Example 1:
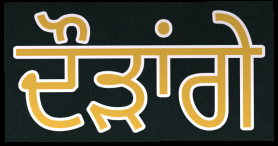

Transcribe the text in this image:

ਦੌੜਾਂਗੇ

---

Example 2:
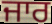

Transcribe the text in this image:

ਜਾਰ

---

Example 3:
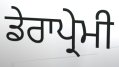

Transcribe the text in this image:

ਡੇਰਾਪ੍ਰੇਮੀ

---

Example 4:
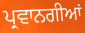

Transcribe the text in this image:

ਪ੍ਰਵਾਨਗੀਆਂ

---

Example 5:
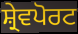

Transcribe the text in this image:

ਸ਼੍ਰੇਵਪੋਰਟ